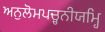
ਅਨੁਲੋਮਪਚ੍ਚਨੀਯਮ੍ਹਿ